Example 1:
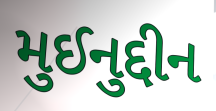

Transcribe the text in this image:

મુઈનુદ્દીન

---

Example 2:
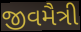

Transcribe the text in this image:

જીવમૈત્રી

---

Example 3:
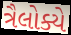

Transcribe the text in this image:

ત્રૈલોક્યે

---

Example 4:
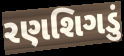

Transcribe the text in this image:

રણશિગડું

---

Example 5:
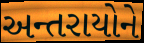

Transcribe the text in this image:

અન્તરાયોને